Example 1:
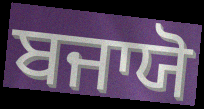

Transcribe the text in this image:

ਬਜਾਯੋ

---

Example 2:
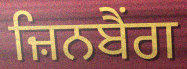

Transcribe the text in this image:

ਜ਼ਿਨਬੈਂਗ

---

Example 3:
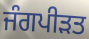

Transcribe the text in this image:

ਜੰਗਪੀੜਤ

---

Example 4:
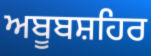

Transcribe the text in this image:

ਅਬੂਬਸ਼ਹਿਰ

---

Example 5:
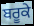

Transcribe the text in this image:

ਬਰੂਕੇ